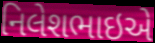
નિલેશભાઇએ